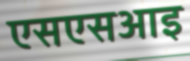
एसएसआइ